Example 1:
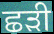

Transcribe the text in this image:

ਛੜੀ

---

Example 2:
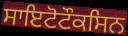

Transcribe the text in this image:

ਸਾਇਟੋਟੌਕਸਿਨ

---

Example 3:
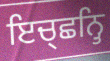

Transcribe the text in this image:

ਇਚ੍ਛਨ੍ਤਿ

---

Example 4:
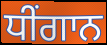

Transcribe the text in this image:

ਧੀਂਗਾਨ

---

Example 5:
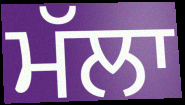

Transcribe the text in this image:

ਮੱਲਾ